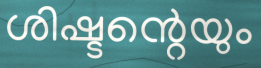
ശിഷ്ടന്റെയും